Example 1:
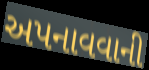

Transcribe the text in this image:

અપનાવવાની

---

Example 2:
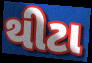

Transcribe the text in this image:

થીટા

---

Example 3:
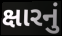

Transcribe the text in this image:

ક્ષારનું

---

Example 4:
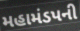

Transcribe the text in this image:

મહામંડપની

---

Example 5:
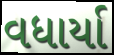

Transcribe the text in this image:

વધાર્યા